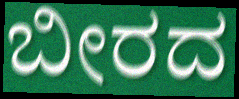
ಬೀರದ